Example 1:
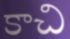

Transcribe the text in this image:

కాచి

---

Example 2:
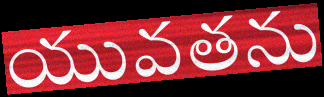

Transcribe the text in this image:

యువతను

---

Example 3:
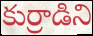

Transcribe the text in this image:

కుర్రాడిని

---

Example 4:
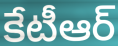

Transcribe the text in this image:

కేటీఆర్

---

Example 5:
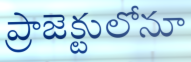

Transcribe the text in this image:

ప్రాజెక్టులోనూ